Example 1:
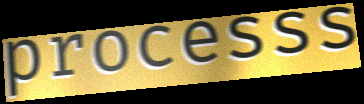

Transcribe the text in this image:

processs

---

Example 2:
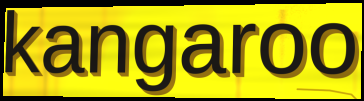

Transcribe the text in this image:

kangaroo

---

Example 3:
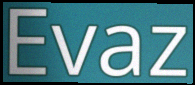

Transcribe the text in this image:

Evaz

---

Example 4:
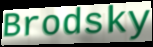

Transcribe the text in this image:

Brodsky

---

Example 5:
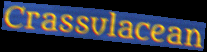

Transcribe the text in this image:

Crassulacean